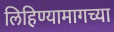
लिहिण्यामागच्या